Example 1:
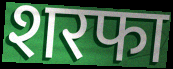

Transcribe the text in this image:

शरफा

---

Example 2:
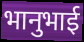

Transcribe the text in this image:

भानुभाई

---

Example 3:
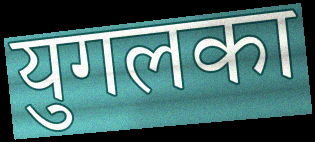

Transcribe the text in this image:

युगलका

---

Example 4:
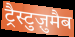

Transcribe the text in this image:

ट्रैस्टुज़ुमैब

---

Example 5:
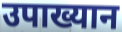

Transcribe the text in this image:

उपाख्यान